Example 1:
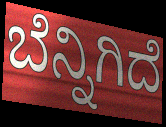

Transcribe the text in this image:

ಬೆನ್ನಿಗಿದೆ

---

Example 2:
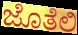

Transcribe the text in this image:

ಜೊತೆಲಿ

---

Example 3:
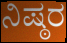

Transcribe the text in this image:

ನಿಷ್ಠರ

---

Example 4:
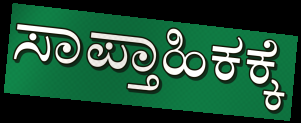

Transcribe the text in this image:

ಸಾಪ್ತಾಹಿಕಕ್ಕೆ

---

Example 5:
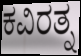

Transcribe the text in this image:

ಕವಿರತ್ನ